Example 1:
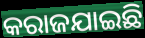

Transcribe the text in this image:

କରାଜଯାଇଛି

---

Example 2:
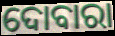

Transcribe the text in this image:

ଦୋବାରା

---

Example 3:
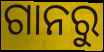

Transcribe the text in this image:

ଗାନରୁ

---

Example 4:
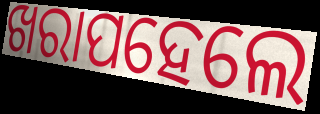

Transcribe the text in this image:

ଖରାପହେଲେ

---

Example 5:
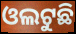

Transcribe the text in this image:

ଓଲଟୁଛି